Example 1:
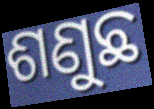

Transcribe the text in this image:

ଶଣୁଛ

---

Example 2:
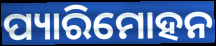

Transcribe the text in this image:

ପ୍ୟାରିମୋହନ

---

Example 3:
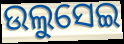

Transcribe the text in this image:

ଉଲୁସେଇ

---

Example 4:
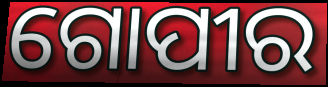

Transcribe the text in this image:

ଗୋପୀର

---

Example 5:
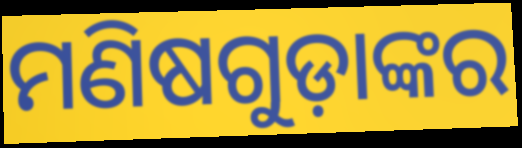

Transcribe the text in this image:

ମଣିଷଗୁଡ଼ାଙ୍କର